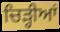
ਚਿੜ੍ਹੀਆਂ